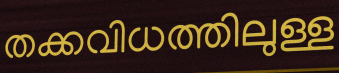
തക്കവിധത്തിലുള്ള